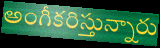
అంగీకరిస్తున్నారు